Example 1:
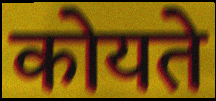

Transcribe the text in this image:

कोयते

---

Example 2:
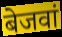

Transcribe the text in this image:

बेजवां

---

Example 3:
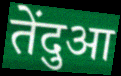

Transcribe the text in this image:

तेंदुआ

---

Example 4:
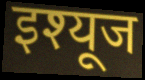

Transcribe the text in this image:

इश्यूज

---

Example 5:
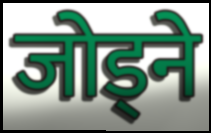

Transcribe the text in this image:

जोड्ने